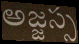
అజ్జస్స